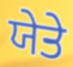
ਯੇਤੇ